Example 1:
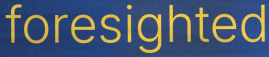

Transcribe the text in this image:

foresighted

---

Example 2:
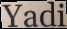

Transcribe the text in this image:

Yadi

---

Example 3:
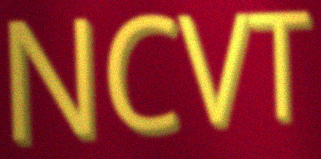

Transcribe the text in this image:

NCVT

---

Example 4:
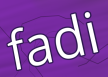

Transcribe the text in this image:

fadi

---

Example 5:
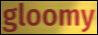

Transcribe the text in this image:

gloomy